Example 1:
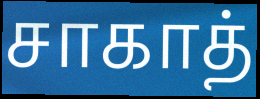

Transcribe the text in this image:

சாகாத்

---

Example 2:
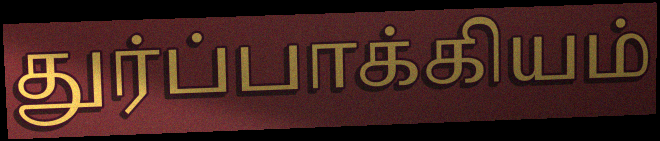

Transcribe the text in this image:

துர்ப்பாக்கியம்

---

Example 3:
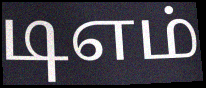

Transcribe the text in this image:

டிஎம்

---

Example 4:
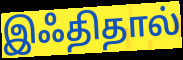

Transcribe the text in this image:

இஃதிதால்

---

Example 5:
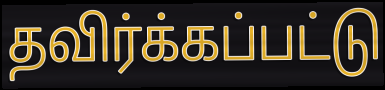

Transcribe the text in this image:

தவிர்க்கப்பட்டு